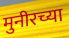
मुनीरच्या